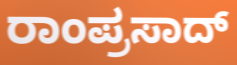
ರಾಂಪ್ರಸಾದ್